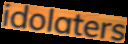
idolaters